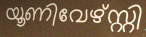
യൂണിവേഴ്സ്റ്റി